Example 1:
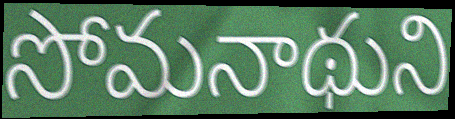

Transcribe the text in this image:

సోమనాథుని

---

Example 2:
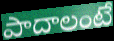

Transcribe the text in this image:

పాదాలంటే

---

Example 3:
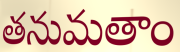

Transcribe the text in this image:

తనుమతాం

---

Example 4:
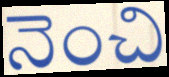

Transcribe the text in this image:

నెంచి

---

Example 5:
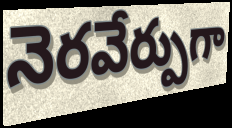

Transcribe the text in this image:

నెరవేర్పుగా